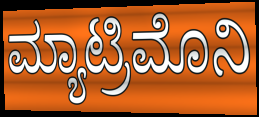
ಮ್ಯಾಟ್ರಿಮೊನಿ